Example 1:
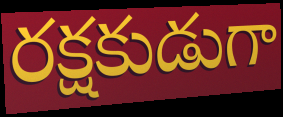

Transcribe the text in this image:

రక్షకుడుగా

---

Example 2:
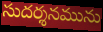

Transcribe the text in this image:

సుదర్శనమును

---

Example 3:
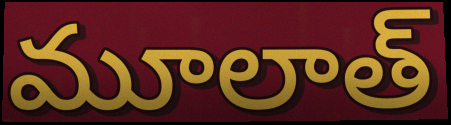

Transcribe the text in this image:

మూలాత్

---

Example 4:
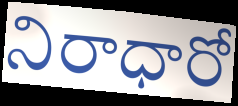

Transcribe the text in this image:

నిరాధారో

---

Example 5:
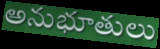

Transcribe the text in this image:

అనుభూతులు